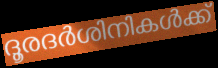
ദൂരദർശിനികൾക്ക്